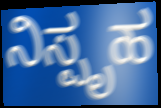
ನಿಸ್ಪೃಹ